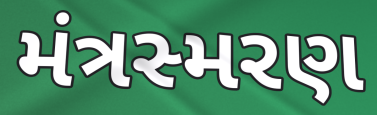
મંત્રસ્મરણ